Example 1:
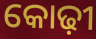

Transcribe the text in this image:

କୋଢ଼ୀ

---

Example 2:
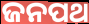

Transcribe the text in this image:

ଜନପଥ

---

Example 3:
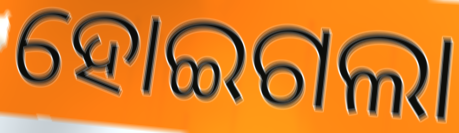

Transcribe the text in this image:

ହୋଇଗଲା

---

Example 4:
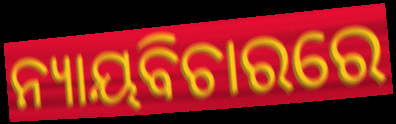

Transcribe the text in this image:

ନ୍ୟାୟବିଚାରରେ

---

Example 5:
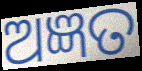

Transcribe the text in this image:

ଅଜ୍ଞତ